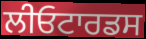
ਲੀਓਟਾਰਡਸ